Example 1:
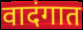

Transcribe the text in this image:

वादंगात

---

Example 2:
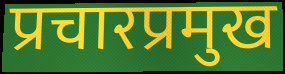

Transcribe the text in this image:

प्रचारप्रमुख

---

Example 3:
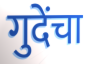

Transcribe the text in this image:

गुदेंचा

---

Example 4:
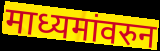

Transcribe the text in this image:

माध्यमांवरुन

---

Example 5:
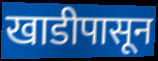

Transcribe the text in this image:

खाडीपासून